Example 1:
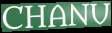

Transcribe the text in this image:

CHANU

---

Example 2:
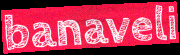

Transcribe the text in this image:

banaveli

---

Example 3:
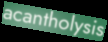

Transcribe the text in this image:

acantholysis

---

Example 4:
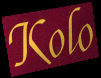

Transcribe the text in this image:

Kolo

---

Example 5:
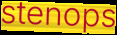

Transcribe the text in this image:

stenops